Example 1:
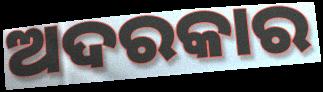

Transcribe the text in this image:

ଅଦରକାର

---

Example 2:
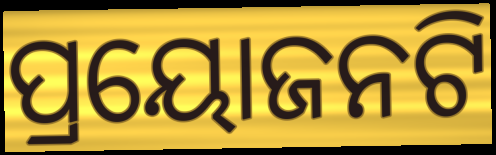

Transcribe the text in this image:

ପ୍ରୟୋଜନଟି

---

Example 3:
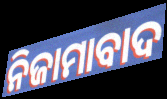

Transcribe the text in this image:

ନିଜାମାବାଦ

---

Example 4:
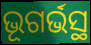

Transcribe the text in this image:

ଭୂଗର୍ଭସ୍ଥ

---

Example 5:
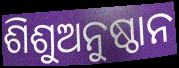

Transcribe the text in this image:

ଶିଶୁଅନୁଷ୍ଠାନ